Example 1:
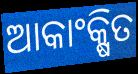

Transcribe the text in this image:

ଆକାଂକ୍ଷିତ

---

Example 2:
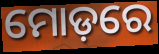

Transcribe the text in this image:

ମୋଡ଼ରେ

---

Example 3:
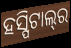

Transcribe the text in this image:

ହସ୍ପିଟାଲ୍‌ର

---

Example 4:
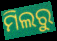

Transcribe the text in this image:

ମିଲରୁ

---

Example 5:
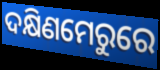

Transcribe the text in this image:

ଦକ୍ଷିଣମେରୁରେ